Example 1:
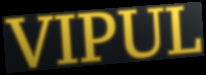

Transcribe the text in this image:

VIPUL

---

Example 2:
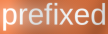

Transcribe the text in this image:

prefixed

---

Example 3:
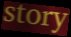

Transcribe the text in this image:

story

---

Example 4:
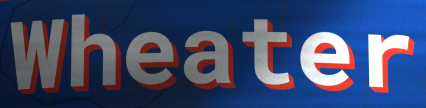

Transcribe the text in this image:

Wheater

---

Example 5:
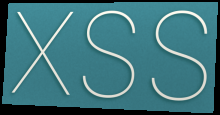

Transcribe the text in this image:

XSS